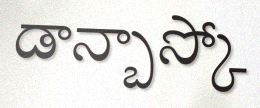
డాన్బాస్కో